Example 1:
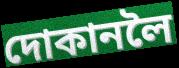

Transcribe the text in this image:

দোকানলৈ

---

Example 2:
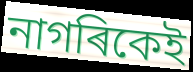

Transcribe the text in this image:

নাগৰিকেই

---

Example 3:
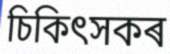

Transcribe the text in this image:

চিকিৎসকৰ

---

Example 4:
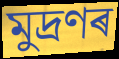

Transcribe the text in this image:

মুদ্ৰণৰ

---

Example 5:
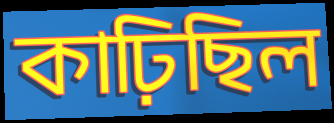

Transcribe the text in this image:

কাঢ়িছিল